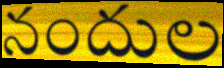
నందుల